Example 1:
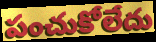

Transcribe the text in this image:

పంచుకోలేదు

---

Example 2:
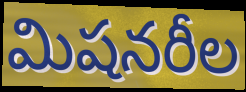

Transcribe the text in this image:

మిషనరీల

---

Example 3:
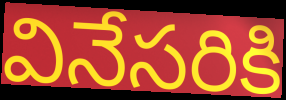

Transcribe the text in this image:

వినేసరికి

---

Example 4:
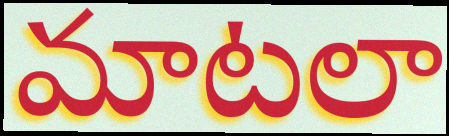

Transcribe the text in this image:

మాటలా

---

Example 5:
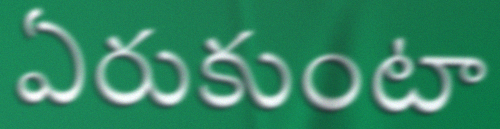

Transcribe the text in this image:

ఏరుకుంటా